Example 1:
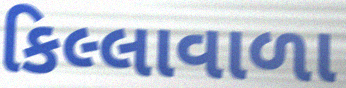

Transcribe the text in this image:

કિલ્લાવાળા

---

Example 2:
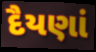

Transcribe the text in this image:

દૈયણાં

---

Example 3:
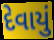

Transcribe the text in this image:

દેવાયું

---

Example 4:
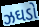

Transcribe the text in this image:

ઝઘડો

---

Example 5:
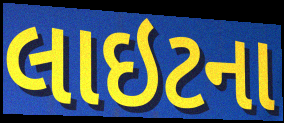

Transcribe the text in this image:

લાઇટના